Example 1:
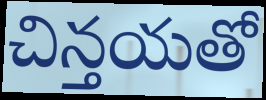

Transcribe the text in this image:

చిన్తయతో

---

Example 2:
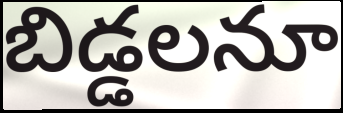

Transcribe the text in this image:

బిడ్డలనూ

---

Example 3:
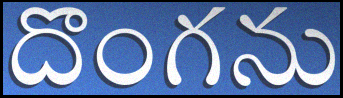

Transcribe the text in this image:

దొంగను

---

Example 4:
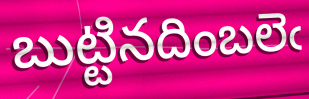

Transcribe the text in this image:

బుట్టినదింబలెఁ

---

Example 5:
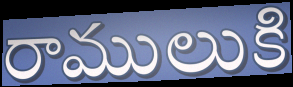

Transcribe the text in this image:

రాములుకి